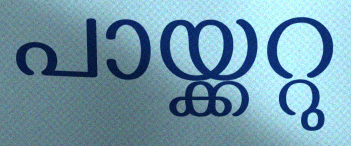
പായ്ക്കറ്റു